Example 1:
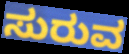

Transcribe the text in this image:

ಸುರುವ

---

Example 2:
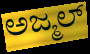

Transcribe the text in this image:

ಅಜ್ಮಲ್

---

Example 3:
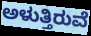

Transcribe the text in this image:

ಅಳುತ್ತಿರುವೆ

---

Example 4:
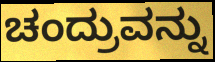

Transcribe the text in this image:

ಚಂದ್ರುವನ್ನು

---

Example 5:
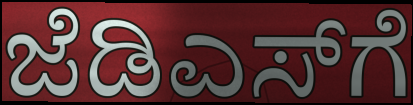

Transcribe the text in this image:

ಜೆಡಿಎಸ್‌ಗೆ